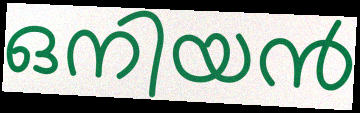
ഒനിയൻ